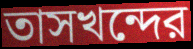
তাসখন্দের